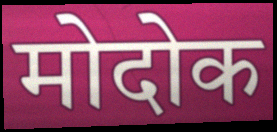
मोदोक